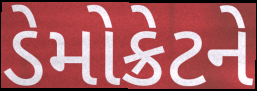
ડેમોક્રેટને